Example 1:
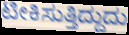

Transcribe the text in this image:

ಟೀಕಿಸುತ್ತಿದ್ದುದು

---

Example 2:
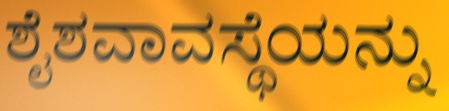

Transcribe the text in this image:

ಶೈಶವಾವಸ್ಥೆಯನ್ನು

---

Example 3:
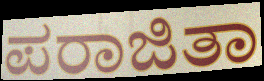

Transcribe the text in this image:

ಪರಾಜಿತಾ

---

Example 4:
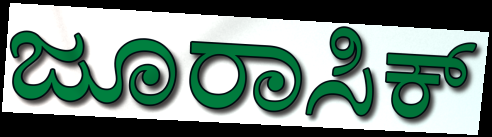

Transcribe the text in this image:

ಜೂರಾಸಿಕ್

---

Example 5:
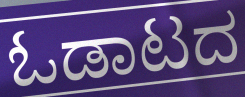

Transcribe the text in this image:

ಓಡಾಟದ